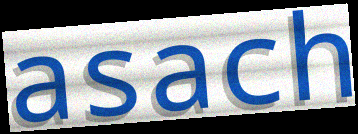
asach